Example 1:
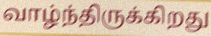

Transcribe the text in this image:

வாழ்ந்திருக்கிறது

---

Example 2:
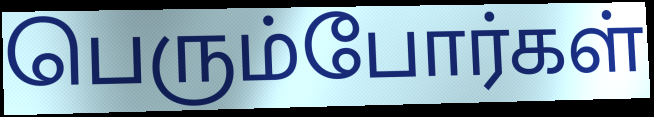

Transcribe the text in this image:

பெரும்போர்கள்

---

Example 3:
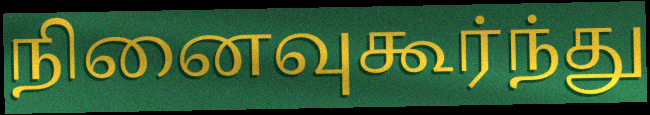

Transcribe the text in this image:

நினைவுகூர்ந்து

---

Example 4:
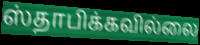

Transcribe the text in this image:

ஸ்தாபிக்கவில்லை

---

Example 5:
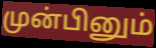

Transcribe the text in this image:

முன்பினும்